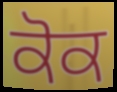
ਕੋਕ